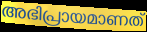
അഭിപ്രായമാണത്